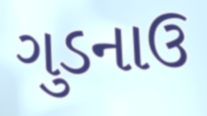
ગુડનાઉ